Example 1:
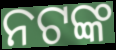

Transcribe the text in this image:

ନଟଙ୍କ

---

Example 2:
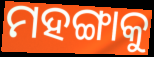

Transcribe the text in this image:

ମହଙ୍ଗାକୁ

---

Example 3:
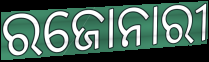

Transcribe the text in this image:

ରଜୋନାରୀ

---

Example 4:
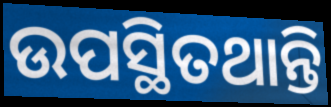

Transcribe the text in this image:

ଉପସ୍ଥିତଥାନ୍ତି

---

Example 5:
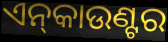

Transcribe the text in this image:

ଏନ୍‌କାଉଣ୍ଟର